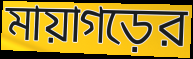
মায়াগড়ের